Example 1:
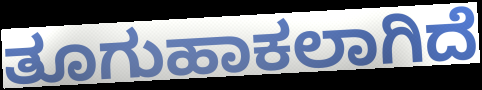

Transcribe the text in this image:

ತೂಗುಹಾಕಲಾಗಿದೆ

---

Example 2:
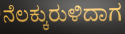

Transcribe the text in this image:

ನೆಲಕ್ಕುರುಳಿದಾಗ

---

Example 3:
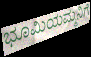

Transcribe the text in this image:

ಭೂಮಿಯಮ್ಮನಿಗೆ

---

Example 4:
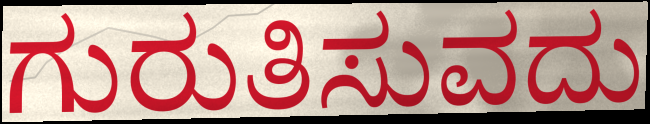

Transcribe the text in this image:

ಗುರುತಿಸುವದು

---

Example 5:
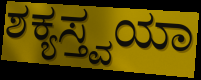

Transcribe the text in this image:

ಶಕ್ಯಸ್ತ್ವಯಾ